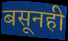
बसूनही